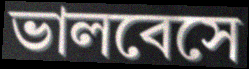
ভালবেসে